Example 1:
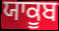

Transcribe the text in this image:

ਯਾਕੂਬ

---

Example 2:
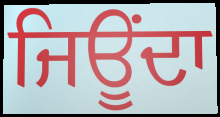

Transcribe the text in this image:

ਜਿਊਂਦਾ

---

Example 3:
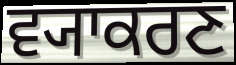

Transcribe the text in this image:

ਵ੍ਯਾਕਰਣ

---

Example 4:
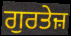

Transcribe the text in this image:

ਗੁਰਤੇਜ਼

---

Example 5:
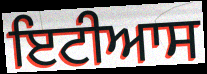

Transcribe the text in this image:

ਇਟੀਆਸ